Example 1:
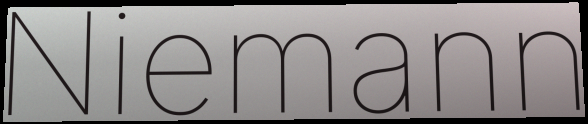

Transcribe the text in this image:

Niemann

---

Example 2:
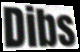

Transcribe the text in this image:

Dibs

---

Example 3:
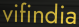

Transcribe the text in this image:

vifindia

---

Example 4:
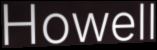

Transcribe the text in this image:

Howell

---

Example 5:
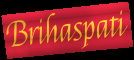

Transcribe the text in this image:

Brihaspati